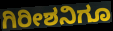
ಗಿರೀಶನಿಗೂ